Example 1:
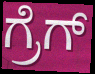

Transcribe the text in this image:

ಗ್ರೆಗ್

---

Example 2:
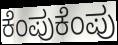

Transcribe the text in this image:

ಕೆಂಪುಕೆಂಪು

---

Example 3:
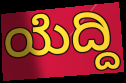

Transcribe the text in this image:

ಯೆದ್ದಿ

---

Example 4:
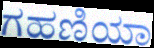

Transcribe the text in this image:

ಗಹಣಿಯಾ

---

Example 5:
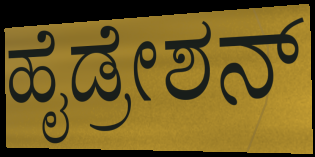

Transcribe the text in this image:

ಹೈಡ್ರೇಶನ್